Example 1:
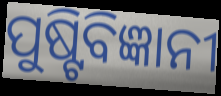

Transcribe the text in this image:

ପୁଷ୍ଟିବିଜ୍ଞାନୀ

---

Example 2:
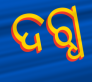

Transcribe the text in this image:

ଦଗ୍ଧ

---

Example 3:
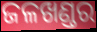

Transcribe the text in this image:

ଜଳଖଣ୍ଡର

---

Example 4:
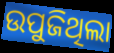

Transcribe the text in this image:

ଉପୁଜିଥିଲା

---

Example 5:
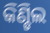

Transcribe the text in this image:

କିଣ୍ଡିଲ